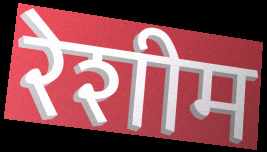
रेशीम